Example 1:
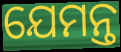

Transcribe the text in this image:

ଯେମନ୍ତ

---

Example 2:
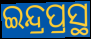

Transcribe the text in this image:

ଇନ୍ଦ୍ରପ୍ରସ୍ଥ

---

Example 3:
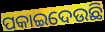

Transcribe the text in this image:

ପକାଇଦେଉଛି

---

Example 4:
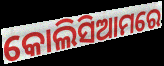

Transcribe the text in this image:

କୋଲିସିଆମରେ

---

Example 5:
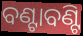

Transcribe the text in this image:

ବଣ୍ଟାବଣ୍ଟି